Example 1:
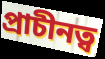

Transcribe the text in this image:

প্ৰাচীনত্ব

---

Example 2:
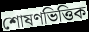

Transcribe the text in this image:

শোষণভিত্তিক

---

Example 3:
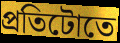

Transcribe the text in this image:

প্ৰতিটোতে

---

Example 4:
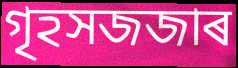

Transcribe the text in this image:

গৃহসজজাৰ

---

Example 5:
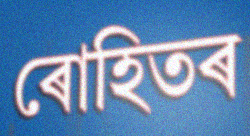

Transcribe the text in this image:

ৰোহিতৰ